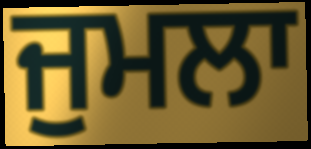
ਜੁਮਲਾ